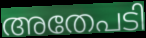
അതേപടി